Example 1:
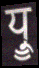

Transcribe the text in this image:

ਧ੍ਰੂ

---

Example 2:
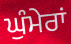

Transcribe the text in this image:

ਘੁੰਮੇਰਾਂ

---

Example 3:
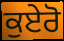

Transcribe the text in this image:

ਕੁਏਰੋ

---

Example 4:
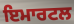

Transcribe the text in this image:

ਇਮਾਰਟਲ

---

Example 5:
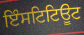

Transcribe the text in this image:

ਇੰਸਟਿਟਿਊਟ